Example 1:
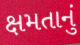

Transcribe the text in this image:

ક્ષમતાનું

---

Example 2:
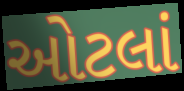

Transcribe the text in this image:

ઓટલાં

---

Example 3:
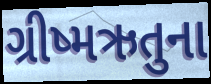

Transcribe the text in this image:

ગ્રીષ્મઋતુના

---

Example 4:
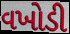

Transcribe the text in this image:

વખોડી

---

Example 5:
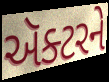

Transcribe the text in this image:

ઍક્ટરને